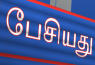
பேசியது